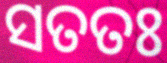
ସତତଃ